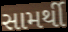
સામર્થી